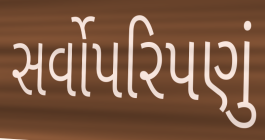
સર્વોપરિપણું